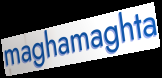
maghamaghta